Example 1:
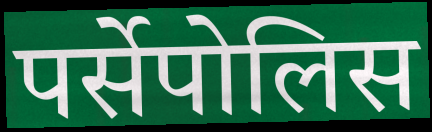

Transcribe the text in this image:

पर्सेपोलिस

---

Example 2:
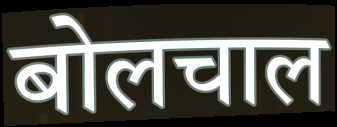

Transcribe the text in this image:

बोलचाल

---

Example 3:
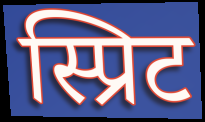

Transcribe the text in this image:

स्प्रिट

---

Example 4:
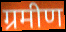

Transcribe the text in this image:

ग्रमीण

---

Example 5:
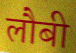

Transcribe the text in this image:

लौबी